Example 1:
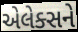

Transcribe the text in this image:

એલેક્સને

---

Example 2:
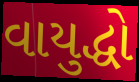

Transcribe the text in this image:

વાયુદ્ધો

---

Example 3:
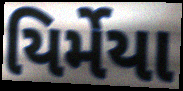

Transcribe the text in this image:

યિર્મેયા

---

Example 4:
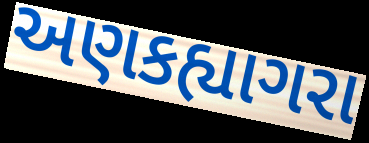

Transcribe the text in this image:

અણકહ્યાગરા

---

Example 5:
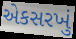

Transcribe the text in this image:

એકસરખું